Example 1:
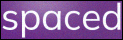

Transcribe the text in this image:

spaced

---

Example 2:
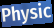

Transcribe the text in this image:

Physic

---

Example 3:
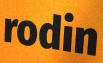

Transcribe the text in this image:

rodin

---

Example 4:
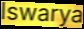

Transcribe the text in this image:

Iswarya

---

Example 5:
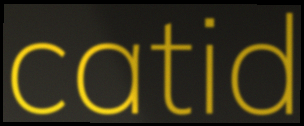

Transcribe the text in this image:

catid